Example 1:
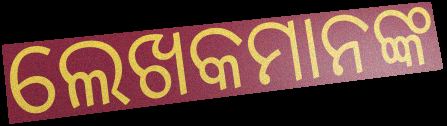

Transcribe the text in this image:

ଲେଖକମାନଙ୍କ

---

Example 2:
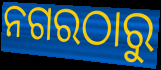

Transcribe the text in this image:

ନଗରଠାରୁ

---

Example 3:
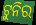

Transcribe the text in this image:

ଟୁନିର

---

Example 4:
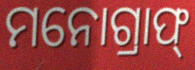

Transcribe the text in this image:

ମନୋଗ୍ରାଫ୍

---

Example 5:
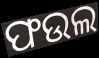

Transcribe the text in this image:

ଫଉଲ